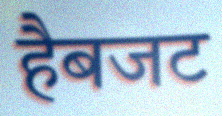
हैबजट